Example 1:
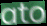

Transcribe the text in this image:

ato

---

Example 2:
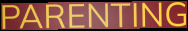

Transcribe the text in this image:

PARENTING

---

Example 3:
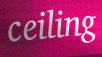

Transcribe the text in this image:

ceiling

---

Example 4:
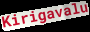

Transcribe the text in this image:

Kirigavalu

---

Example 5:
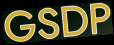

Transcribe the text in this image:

GSDP